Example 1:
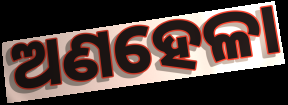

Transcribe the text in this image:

ଅଣହେଳା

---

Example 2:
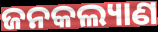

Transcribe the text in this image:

ଜନକଲ୍ୟାଣ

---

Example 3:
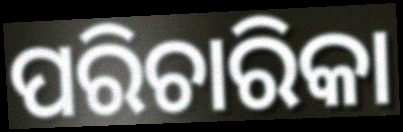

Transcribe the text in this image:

ପରିଚାରିକା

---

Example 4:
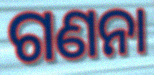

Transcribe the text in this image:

ଗଣନା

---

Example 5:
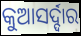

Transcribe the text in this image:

କୁଆସର୍ଦ୍ଦାର